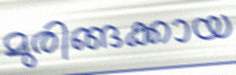
മുരിങ്ങക്കായ